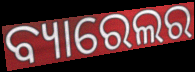
ବ୍ୟାରେଲର